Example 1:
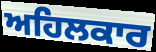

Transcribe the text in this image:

ਅਹਿਲਕਾਰ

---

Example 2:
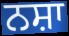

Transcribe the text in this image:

ਨਸ਼ਾ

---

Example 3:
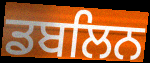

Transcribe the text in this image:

ਡਬਲਿਨ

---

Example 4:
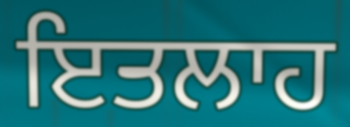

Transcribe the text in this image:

ਇਤਲਾਹ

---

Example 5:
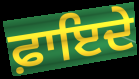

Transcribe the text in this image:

ਫ਼ਾਇਦੇ